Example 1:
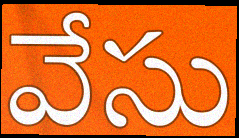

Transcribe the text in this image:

వేసు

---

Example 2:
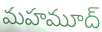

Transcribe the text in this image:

మహమూద్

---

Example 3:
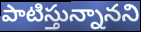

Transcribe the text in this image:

పాటిస్తున్నానని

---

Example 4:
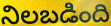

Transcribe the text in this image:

నిలబడింది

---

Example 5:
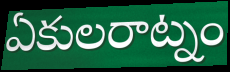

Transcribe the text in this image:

ఏకులరాట్నం